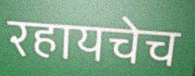
रहायचेच